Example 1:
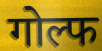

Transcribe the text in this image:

गोल्फ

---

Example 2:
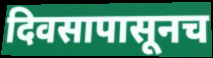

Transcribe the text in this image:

दिवसापासूनच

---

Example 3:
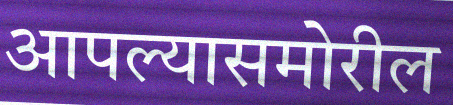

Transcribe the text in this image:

आपल्यासमोरील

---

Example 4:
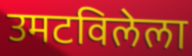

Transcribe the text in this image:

उमटविलेला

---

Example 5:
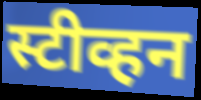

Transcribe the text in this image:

स्टीव्हन